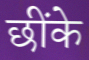
छींके